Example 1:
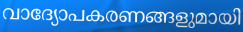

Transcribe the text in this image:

വാദ്യോപകരണങ്ങളുമായി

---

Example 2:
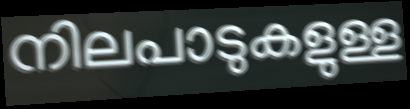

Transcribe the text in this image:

നിലപാടുകളുള്ള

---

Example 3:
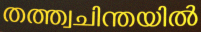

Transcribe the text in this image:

തത്ത്വചിന്തയിൽ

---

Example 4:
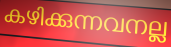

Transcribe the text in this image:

കഴിക്കുന്നവനല്ല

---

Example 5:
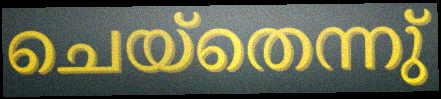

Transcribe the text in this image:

ചെയ്തെന്നു്